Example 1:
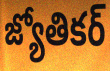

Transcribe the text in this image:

జ్యోతికర్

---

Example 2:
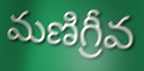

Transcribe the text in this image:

మణిగ్రీవ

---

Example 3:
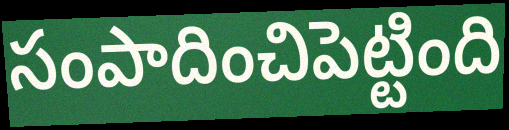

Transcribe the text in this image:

సంపాదించిపెట్టింది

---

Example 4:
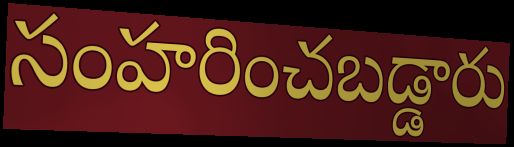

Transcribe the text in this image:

సంహరించబడ్డారు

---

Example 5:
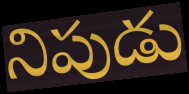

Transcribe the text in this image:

నిపుడు